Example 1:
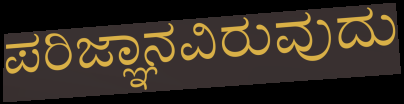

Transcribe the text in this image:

ಪರಿಜ್ಞಾನವಿರುವುದು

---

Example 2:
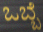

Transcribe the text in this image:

ಒಬ್ಬೆ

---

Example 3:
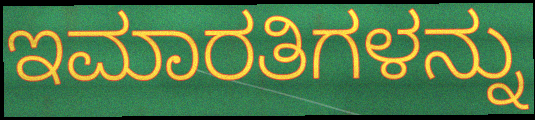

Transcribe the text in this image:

ಇಮಾರತಿಗಳನ್ನು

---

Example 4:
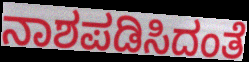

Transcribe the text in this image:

ನಾಶಪಡಿಸಿದಂತೆ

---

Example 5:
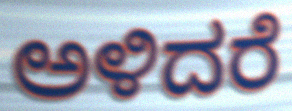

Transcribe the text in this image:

ಅಳಿದರೆ